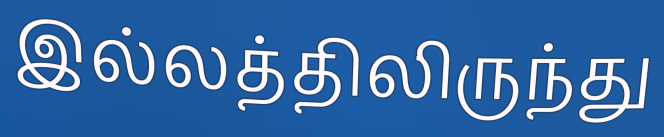
இல்லத்திலிருந்து